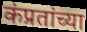
कंप्रतांच्या